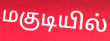
மகுடியில்